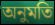
অনুমতি